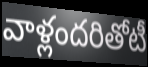
వాళ్లందరితోటీ